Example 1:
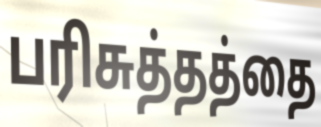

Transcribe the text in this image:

பரிசுத்தத்தை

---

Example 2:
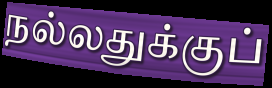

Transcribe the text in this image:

நல்லதுக்குப்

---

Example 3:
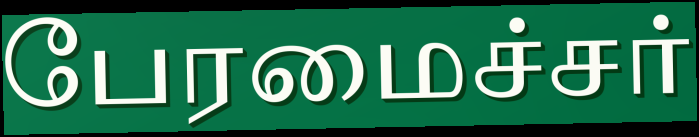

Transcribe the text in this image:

பேரமைச்சர்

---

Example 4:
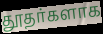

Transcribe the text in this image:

தூதர்களாக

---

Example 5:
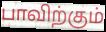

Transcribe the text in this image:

பாவிற்கும்